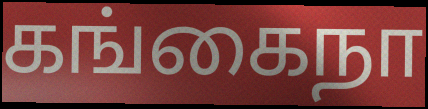
கங்கைநா